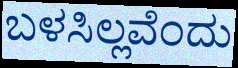
ಬಳಸಿಲ್ಲವೆಂದು